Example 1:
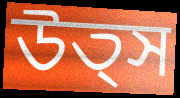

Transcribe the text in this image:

উত্স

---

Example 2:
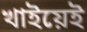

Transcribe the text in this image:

খাইয়েই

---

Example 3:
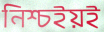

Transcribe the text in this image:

নিশ্চইয়ই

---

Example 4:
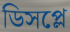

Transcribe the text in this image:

ডিসপ্লে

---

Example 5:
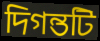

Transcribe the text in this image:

দিগন্তটি